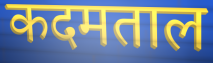
कदमताल